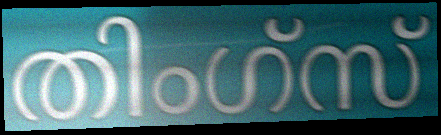
തിംഗ്സ്